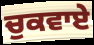
ਚੁਕਵਾਏ